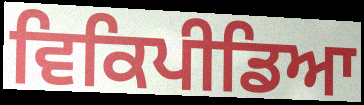
ਵਿਕਿਪੀਡਿਆ